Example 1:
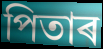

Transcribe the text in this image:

পিতাৰ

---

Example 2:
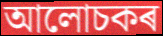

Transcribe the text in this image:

আলোচকৰ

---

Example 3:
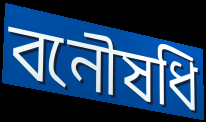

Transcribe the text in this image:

বনৌষধি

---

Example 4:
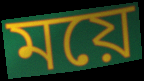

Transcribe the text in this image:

ময়ে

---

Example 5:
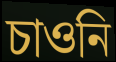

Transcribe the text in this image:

চাওনি